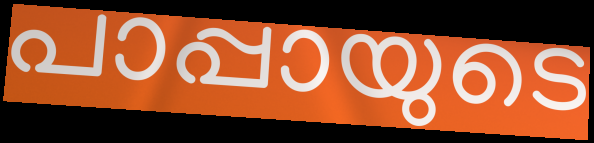
പാപ്പായുടെ